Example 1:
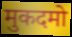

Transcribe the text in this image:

मुकदमो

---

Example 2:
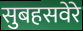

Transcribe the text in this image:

सुबहसवेरे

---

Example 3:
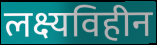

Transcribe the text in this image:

लक्ष्यविहीन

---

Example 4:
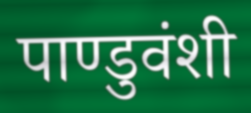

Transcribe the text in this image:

पाण्डुवंशी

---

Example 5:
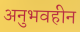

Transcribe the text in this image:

अनुभवहीन